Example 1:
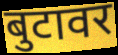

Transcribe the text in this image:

बुटावर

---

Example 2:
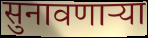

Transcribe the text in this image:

सुनावणाऱ्या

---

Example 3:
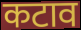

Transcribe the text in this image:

कटाव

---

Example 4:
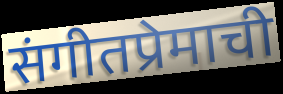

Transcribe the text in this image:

संगीतप्रेमाची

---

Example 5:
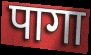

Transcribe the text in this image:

पागा